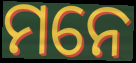
ମନେ